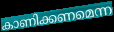
കാണിക്കണമെന്ന